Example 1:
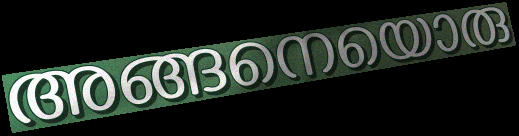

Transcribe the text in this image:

അങ്ങനെയൊരു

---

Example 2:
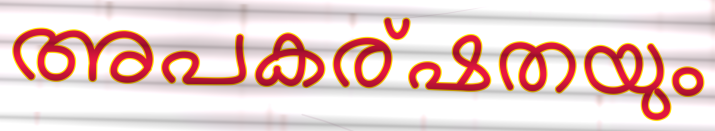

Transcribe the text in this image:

അപകര്ഷതയും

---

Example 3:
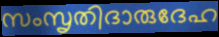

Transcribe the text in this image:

സംസൃതിദാരുദേഹ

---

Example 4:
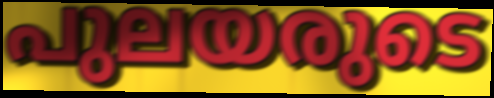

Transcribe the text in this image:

പുലയരുടെ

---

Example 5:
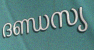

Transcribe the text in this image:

ദണ്ഡസ്യ